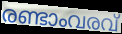
രണ്ടാംവരവ്